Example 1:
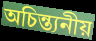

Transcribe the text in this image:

অচিন্ত্যনীয়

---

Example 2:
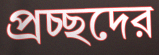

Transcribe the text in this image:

প্রচ্ছদের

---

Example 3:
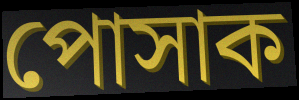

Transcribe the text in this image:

পোসাক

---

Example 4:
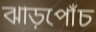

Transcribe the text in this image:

ঝাড়পোঁচ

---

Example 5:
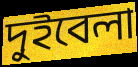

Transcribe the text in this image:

দুইবেলা